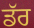
ਡੱਰ